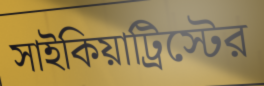
সাইকিয়াট্রিস্টের